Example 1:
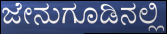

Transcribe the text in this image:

ಜೇನುಗೂಡಿನಲ್ಲಿ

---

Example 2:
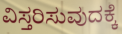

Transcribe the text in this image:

ವಿಸ್ತರಿಸುವುದಕ್ಕೆ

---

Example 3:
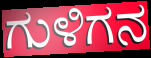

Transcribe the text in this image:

ಗುಳಿಗನ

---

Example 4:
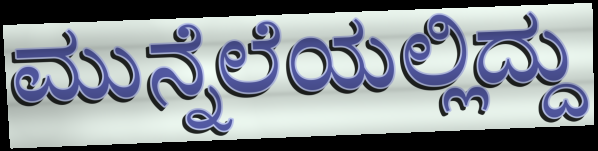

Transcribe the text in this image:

ಮುನ್ನೆಲೆಯಲ್ಲಿದ್ದು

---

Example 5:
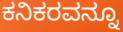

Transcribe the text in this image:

ಕನಿಕರವನ್ನೂ